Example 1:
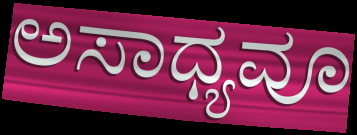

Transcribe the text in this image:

ಅಸಾಧ್ಯವೂ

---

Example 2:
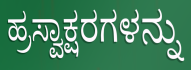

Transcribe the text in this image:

ಹ್ರಸ್ವಾಕ್ಷರಗಳನ್ನು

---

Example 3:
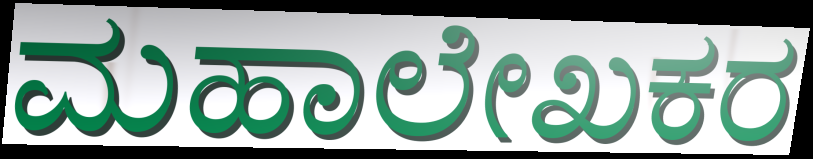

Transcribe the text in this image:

ಮಹಾಲೇಖಕರ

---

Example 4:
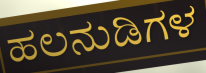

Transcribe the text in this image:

ಹಲನುಡಿಗಳ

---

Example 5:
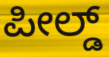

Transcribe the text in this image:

ಪೀಲ್ಡ್